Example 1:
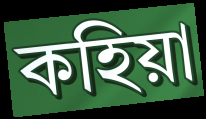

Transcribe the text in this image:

কহিয়া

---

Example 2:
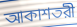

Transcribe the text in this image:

আকাশতরী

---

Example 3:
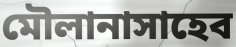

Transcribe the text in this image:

মৌলানাসাহেব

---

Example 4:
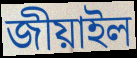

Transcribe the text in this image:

জীয়াইল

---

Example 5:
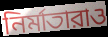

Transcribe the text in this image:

নির্মাতারাও